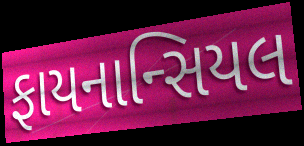
ફાયનાન્સિયલ